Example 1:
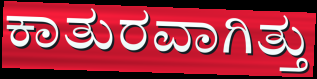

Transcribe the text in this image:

ಕಾತುರವಾಗಿತ್ತು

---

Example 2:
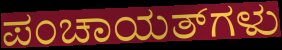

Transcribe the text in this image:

ಪಂಚಾಯತ್‌ಗಳು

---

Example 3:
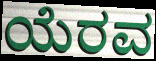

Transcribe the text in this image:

ಯೆರವ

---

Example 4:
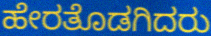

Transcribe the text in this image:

ಹೇರತೊಡಗಿದರು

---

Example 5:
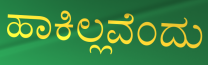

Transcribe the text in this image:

ಹಾಕಿಲ್ಲವೆಂದು